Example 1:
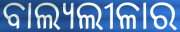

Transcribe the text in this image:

ବାଲ୍ୟଲୀଳାର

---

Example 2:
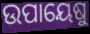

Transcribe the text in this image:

ଉପାୟେଷୁ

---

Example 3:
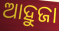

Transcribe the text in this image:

ଆହୁଜା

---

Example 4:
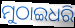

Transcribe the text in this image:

ମୁଠାଇଧରି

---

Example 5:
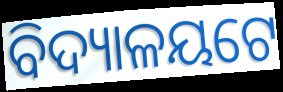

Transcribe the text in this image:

ବିଦ୍ୟାଳୟଟେ